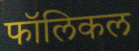
फॉलिकल